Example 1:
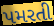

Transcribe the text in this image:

પમરતી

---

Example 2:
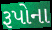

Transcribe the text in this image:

રૂપોના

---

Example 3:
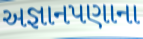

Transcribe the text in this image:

અજ્ઞાનપણાના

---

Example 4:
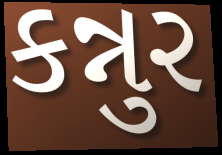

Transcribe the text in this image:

કન્નુર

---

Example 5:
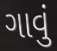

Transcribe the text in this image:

ગાવું